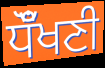
ਧੌਁਖਣੀ